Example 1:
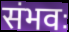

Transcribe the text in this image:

संभवः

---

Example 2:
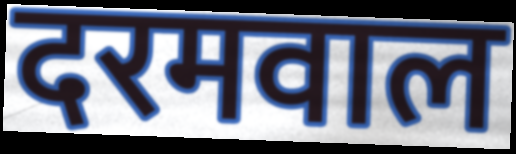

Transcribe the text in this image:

दरमवाल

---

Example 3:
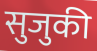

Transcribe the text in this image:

सुजुकी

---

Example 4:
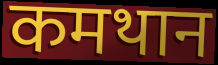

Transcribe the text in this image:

कमथान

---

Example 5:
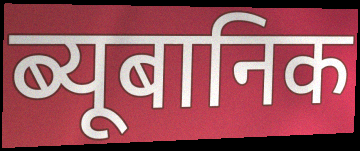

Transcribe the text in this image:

ब्यूबानिक